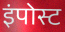
इंपोस्ट